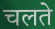
चलते